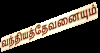
வந்தியத்தேவனையும்